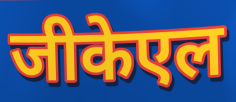
जीकेएल